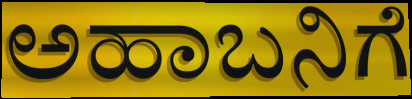
ಅಹಾಬನಿಗೆ